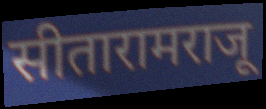
सीतारामराजू